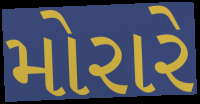
મોરારે